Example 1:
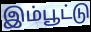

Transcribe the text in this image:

இம்பூட்டு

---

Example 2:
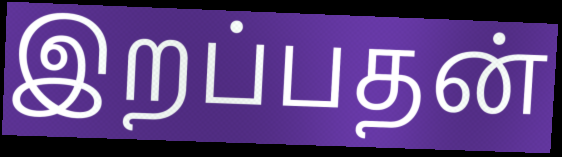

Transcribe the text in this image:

இறப்பதன்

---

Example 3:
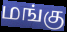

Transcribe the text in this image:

மங்கு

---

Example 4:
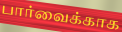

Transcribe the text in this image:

பார்வைக்காக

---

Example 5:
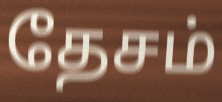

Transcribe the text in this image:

தேசம்